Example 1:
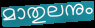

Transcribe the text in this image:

മാതുലനും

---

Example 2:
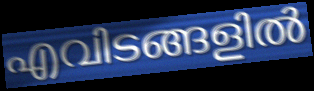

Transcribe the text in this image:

എവിടങ്ങളിൽ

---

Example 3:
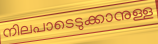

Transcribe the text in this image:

നിലപാടെടുക്കാനുള്ള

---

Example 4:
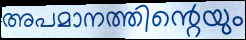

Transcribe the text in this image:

അപമാനത്തിന്റെയും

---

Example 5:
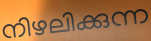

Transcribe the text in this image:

നിഴലിക്കുന്ന